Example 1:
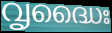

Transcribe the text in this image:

വൃദ്ധൈഃ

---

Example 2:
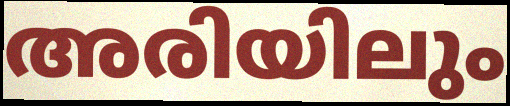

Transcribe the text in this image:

അരിയിലും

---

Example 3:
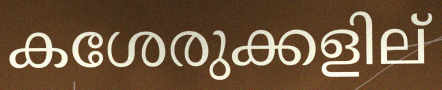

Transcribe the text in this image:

കശേരുക്കളില്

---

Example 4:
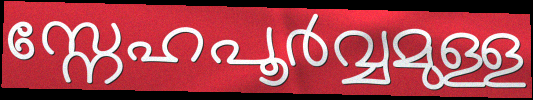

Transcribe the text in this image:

സ്നേഹപൂർവ്വമുള്ള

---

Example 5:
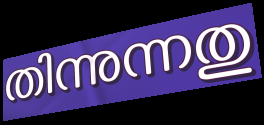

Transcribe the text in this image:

തിന്നുന്നതു